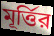
মূর্ত্তির